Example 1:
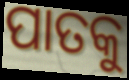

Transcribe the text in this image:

ପାତକୁ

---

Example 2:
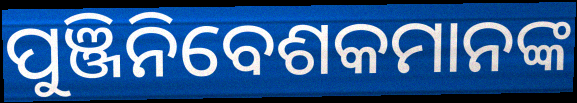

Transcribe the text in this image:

ପୁଞ୍ଜିନିବେଶକମାନଙ୍କ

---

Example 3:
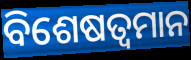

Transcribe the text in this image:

ବିଶେଷତ୍ଵମାନ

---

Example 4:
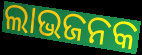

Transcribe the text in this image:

ଲାଭଜନକ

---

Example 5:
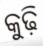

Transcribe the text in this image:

କୁଢ଼ି